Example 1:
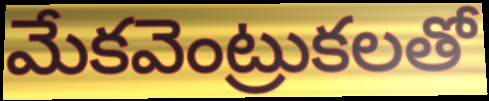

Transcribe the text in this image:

మేకవెంట్రుకలతో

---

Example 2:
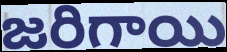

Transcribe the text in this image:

జరిగాయి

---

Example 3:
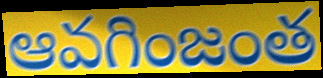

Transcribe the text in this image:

ఆవగింజంత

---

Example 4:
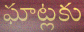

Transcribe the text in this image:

ఘాట్లకు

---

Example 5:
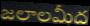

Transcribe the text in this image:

జలాలమీద